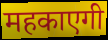
महकाएगी